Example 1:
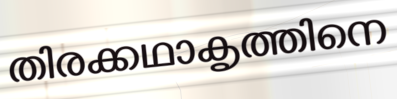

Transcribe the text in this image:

തിരക്കഥാകൃത്തിനെ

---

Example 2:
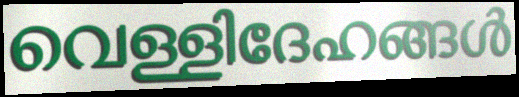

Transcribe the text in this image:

വെള്ളിദേഹങ്ങൾ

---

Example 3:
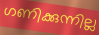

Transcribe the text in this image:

ഗണിക്കുന്നില്ല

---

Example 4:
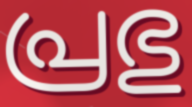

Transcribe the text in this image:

പ്രഭു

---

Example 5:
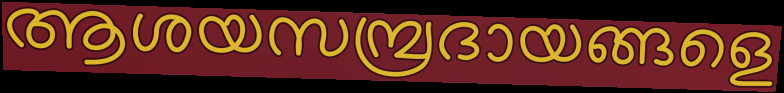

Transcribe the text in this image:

ആശയസമ്പ്രദായങ്ങളെ